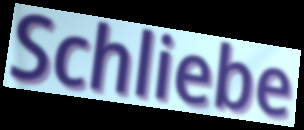
Schliebe